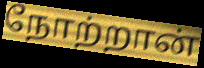
நோற்றான்